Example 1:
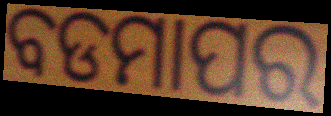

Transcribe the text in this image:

ବଡମାପର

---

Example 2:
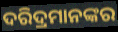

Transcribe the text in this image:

ଦରିଦ୍ରମାନଙ୍କର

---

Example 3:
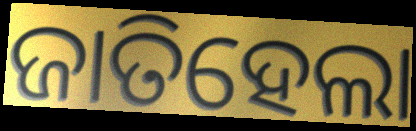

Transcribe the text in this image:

ଜାତିହେଲା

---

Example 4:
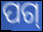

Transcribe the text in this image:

ପଗ୍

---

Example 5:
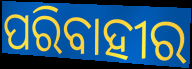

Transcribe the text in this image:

ପରିବାହୀର